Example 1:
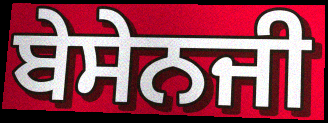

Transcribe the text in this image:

ਬੇਸੇਨਜੀ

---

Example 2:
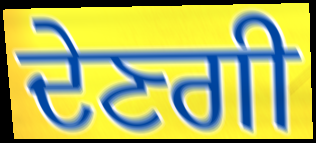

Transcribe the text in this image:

ਦੇਣਗੀ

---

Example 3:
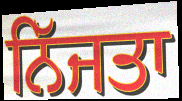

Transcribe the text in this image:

ਨਿੱਜਤਾ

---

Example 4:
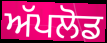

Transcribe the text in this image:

ਅੱਪਲੋਡ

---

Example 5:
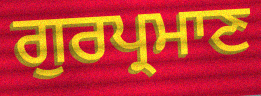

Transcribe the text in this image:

ਗੁਰਪ੍ਰਮਾਣ